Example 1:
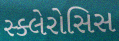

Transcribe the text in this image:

સ્ક્લેરોસિસ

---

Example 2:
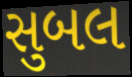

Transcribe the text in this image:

સુબલ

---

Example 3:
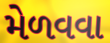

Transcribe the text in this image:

મેળવવા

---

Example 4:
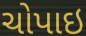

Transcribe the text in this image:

ચોપાઇ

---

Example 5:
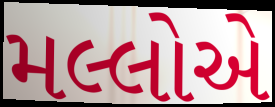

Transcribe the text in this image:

મલ્લોએ